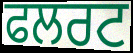
ਫਲਰਟ